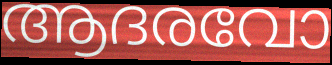
ആദരവോ